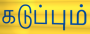
கடுப்பும்